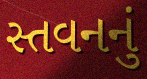
સ્તવનનું